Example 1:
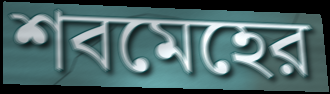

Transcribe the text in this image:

শবমেহের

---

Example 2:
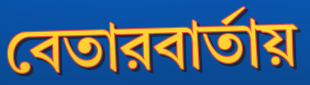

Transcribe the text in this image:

বেতারবার্তায়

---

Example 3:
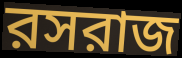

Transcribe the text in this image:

রসরাজ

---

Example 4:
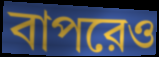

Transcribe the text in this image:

বাপরেও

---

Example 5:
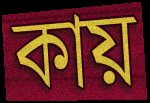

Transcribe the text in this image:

কায়